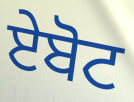
ਏਬੋਟ